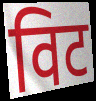
विट